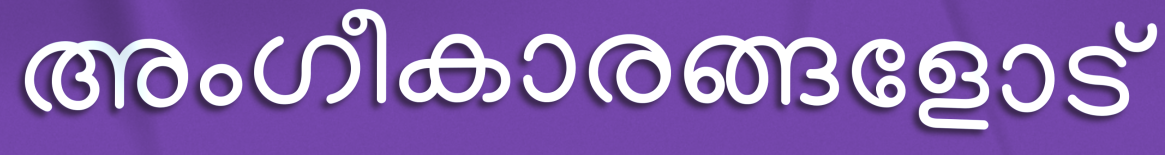
അംഗീകാരങ്ങളോട്